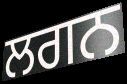
ਲਗਨ